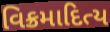
વિક્રમાદિત્ય